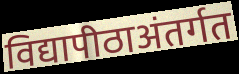
विद्यापीठाअंतर्गत